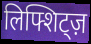
लिफ्शिट्ज़